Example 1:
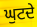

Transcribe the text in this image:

ਘੁਟਦੇ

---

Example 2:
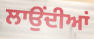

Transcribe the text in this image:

ਲਾਉੰਦੀਆਂ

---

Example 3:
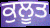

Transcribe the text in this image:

ਕੁਲੂਤ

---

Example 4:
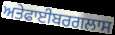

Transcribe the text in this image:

ਅਤੇਫਾਈਬਰਗਲਾਸ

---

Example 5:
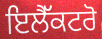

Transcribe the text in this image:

ਇਲੈੱਕਟਰੋ